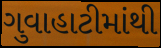
ગુવાહાટીમાંથી